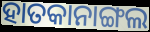
ହାତକାନାଙ୍ଗଲ